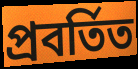
প্রবর্তিত